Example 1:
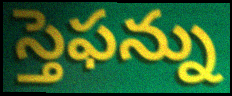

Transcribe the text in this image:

స్తెఫన్ను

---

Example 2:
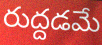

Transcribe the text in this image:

రుద్దడమే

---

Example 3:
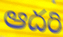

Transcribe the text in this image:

ఆదరి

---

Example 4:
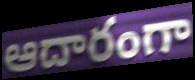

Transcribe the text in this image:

ఆదారంగా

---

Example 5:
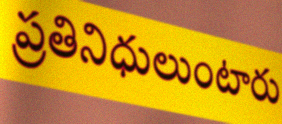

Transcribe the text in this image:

ప్రతినిధులుంటారు